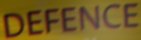
DEFENCE